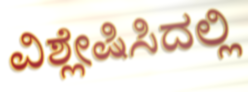
ವಿಶ್ಲೇಷಿಸಿದಲ್ಲಿ